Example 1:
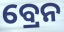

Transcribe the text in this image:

ବ୍ରେନ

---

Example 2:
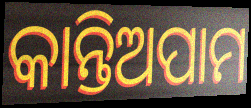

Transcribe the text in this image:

କାନ୍ତିଅପାମ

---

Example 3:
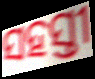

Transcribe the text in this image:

ସହସ୍ତୀ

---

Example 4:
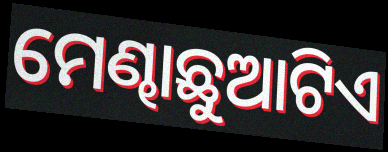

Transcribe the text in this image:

ମେଣ୍ଢାଛୁଆଟିଏ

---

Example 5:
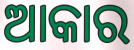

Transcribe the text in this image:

ଆକାର